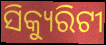
ସିକ୍ୟୁରିଟୀ